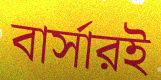
বার্সারই